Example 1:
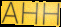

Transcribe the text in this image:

AHH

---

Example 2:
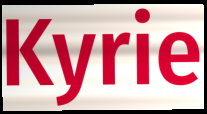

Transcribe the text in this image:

Kyrie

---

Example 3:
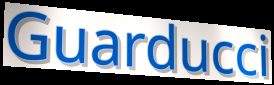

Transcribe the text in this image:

Guarducci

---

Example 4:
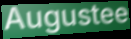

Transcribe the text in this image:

Augustee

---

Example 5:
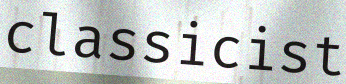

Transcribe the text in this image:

classicist